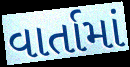
વાર્તામાં